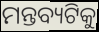
ମନ୍ତବ୍ୟଟିକୁ